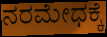
ನರಮೇಧಕ್ಕೆ